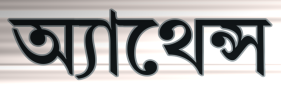
অ্যাথেন্স